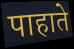
पाहाते